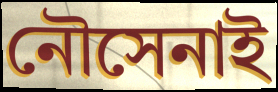
নৌসেনাই